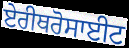
ਏਰੀਥਰੋਸਾਈਟ